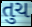
તુચ